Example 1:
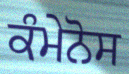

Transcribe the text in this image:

ਕੰਮੇਨੋਸ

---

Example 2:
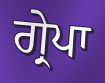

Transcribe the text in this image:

ਗ੍ਰੇਪਾ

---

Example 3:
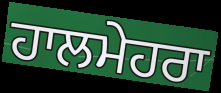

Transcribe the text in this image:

ਹਾਲਮੇਹਰਾ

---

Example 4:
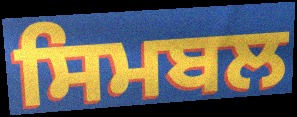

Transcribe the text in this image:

ਸਿਮਬਲ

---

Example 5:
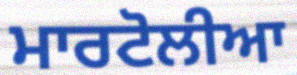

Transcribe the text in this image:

ਮਾਰਟੋਲੀਆ